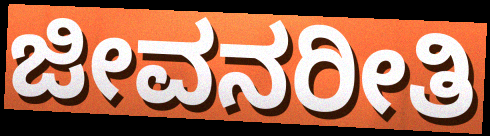
ಜೀವನರೀತಿ